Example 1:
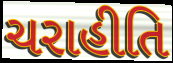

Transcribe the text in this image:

ચરાહીતિ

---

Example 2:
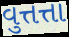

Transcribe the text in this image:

વુત્તત્તા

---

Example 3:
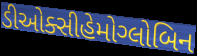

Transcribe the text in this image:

ડીઓક્સીહેમોગ્લોબિન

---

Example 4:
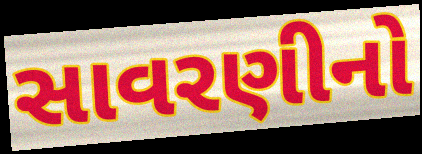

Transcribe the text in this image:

સાવરણીનો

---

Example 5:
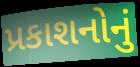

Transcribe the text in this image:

પ્રકાશનોનું